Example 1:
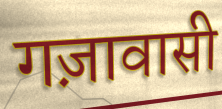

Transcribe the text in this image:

गज़ावासी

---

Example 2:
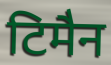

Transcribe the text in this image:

टिमैन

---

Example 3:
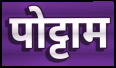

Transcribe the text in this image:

पोट्टाम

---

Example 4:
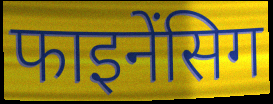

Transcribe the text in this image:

फाइनेंसिग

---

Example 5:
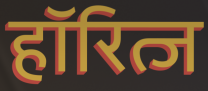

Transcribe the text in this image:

हॉरित्ज